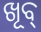
ଖୂବ୍